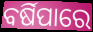
ବର୍ଷିପାରେ